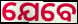
ଯେବେ